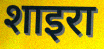
शाइरा